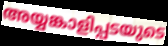
അയ്യങ്കാളിപ്പടയുടെ